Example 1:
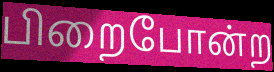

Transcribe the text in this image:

பிறைபோன்ற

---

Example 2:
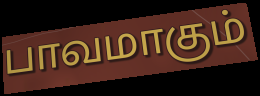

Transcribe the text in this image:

பாவமாகும்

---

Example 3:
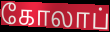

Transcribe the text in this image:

கோலாப்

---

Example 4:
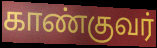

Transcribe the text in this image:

காண்குவர்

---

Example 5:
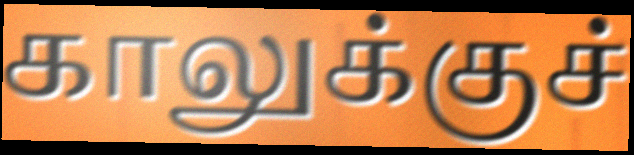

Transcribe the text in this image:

காலுக்குச்